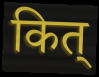
कित्